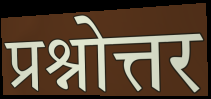
प्रश्नोत्तर